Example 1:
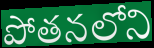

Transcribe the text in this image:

పోతనలోని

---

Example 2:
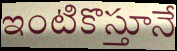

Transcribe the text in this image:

ఇంటికొస్తూనే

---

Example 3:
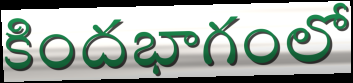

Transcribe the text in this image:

కిందభాగంలో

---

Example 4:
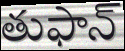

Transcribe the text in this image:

తుఫాన్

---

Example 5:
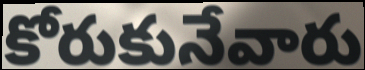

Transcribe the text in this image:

కోరుకునేవారు